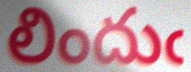
లిందుఁ